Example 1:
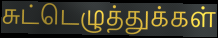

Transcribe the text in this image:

சுட்டெழுத்துக்கள்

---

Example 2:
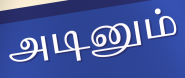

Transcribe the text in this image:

அடினும்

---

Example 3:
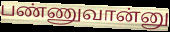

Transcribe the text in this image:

பண்ணுவான்னு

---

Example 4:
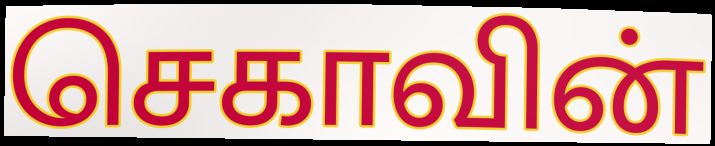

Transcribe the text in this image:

செகாவின்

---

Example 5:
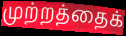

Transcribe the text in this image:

முற்றத்தைக்